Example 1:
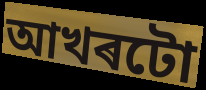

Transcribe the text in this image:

আখৰটো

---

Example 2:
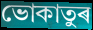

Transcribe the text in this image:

ভোকাতুৰ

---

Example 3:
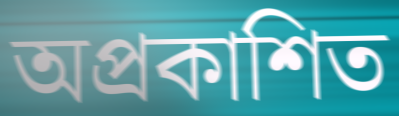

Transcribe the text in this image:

অপ্ৰকাশিত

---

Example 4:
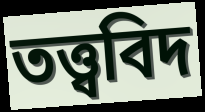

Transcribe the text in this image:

তত্ত্ববিদ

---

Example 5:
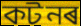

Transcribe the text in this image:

কটনৰ